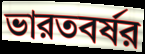
ভারতবর্ষর